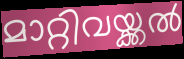
മാറ്റിവയ്ക്കൽ